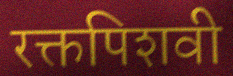
रक्तपिशवी